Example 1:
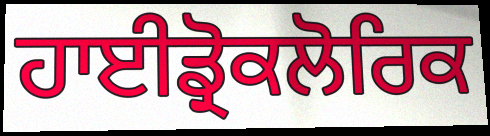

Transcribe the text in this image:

ਹਾਈਡ੍ਰੋਕਲੋਰਿਕ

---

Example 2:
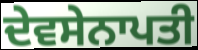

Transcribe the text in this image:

ਦੇਵਸੇਨਾਪਤੀ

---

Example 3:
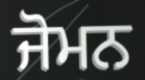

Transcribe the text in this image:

ਜੋਮਨ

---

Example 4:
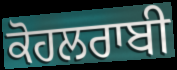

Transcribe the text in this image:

ਕੋਹਲਰਾਬੀ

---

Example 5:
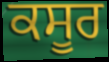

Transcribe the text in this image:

ਕਸੂਰ